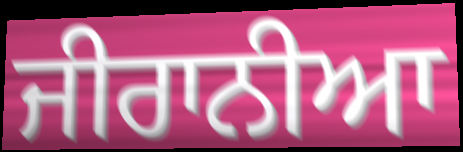
ਜੀਰਾਨੀਆ